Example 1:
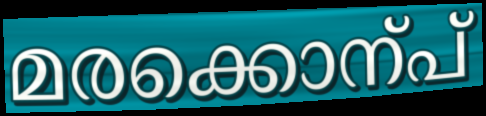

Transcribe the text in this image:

മരക്കൊന്പ്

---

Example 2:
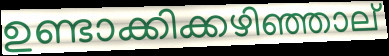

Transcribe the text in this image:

ഉണ്ടാക്കിക്കഴിഞ്ഞാല്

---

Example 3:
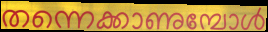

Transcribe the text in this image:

തന്നെക്കാണുമ്പോൾ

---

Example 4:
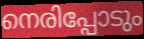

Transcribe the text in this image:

നെരിപ്പോടും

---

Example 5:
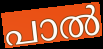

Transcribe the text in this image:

പാൽ